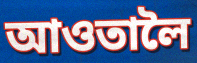
আওতালৈ